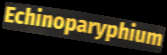
Echinoparyphium